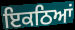
ਇਕਠਿਆਂ